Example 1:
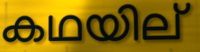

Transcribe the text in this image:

കഥയില്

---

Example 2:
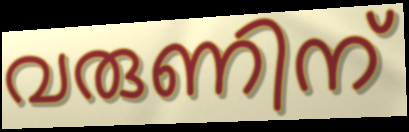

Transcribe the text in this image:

വരുണിന്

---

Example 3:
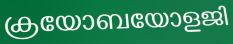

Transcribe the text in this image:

ക്രയോബയോളജി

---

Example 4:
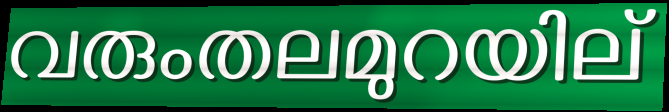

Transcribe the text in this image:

വരുംതലമുറയില്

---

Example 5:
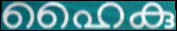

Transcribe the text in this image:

ഹൈകു